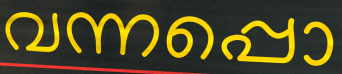
വന്നപ്പൊ